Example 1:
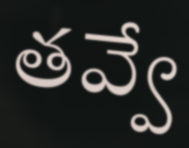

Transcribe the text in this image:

తవ్వే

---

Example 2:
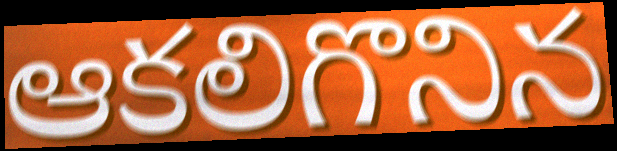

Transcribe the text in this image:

ఆకలిగొనిన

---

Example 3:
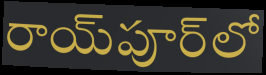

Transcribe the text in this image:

రాయ్‌పూర్‌లో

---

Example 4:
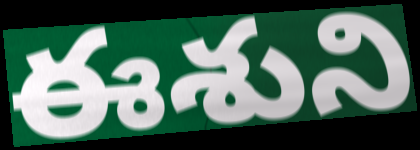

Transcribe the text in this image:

ఈశుని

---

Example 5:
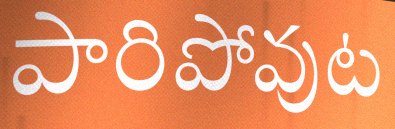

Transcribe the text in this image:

పారిపోవుట